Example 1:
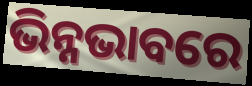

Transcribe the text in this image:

ଭିନ୍ନଭାବରେ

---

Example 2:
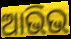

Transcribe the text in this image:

ଆଭିଭ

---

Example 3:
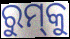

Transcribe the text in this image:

ରୁମ୍‍କୁ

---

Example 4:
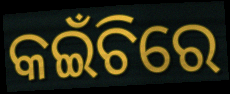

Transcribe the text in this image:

କଇଁଚିରେ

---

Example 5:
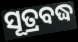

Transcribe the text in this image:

ସୂତ୍ରବଦ୍ଧ